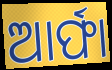
ଆର୍ଫା